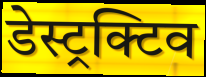
डेस्ट्रक्टिव